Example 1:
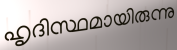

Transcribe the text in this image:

ഹൃദിസ്ഥമായിരുന്നു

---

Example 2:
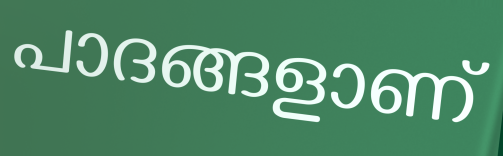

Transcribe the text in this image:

പാദങ്ങളാണ്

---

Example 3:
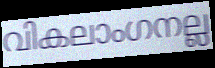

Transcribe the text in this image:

വികലാംഗനല്ല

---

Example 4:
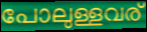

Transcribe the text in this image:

പോലുള്ളവര്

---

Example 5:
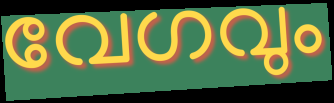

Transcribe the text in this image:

വേഗവും